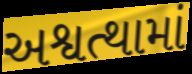
અશ્વત્થામાં